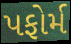
પફોર્મ